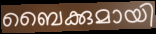
ബൈക്കുമായി